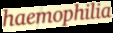
haemophilia